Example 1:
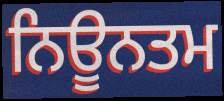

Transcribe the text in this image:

ਨਿਊਨਤਮ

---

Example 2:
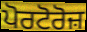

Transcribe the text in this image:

ਪੋਰਟੋਰੋਜ਼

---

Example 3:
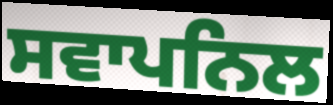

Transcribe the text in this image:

ਸਵਾਪਨਿਲ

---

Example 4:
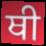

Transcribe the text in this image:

ਥੀ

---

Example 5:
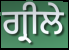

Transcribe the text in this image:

ਗ੍ਰੀਲੇ